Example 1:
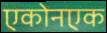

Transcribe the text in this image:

एकोनएक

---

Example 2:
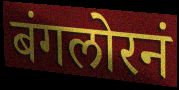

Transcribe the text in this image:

बंगलोरनं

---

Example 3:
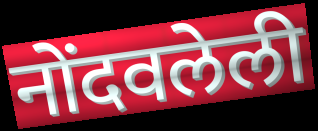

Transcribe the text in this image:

नोंदवलेली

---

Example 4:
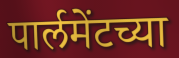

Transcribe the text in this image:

पार्लमेंटच्या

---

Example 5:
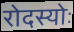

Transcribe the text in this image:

रोदस्योः